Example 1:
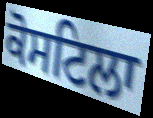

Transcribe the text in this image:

ਕੋਸਟਿਲਾ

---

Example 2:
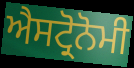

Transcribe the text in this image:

ਐਸਟ੍ਰੋਨੋਮੀ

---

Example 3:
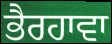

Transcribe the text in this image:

ਭੈਰਹਾਵਾ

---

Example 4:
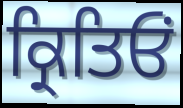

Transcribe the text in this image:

ਕ੍ਰਿਤਿਓਂ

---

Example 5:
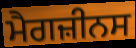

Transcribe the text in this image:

ਮੈਗਜ਼ੀਨਸ